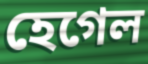
হেগেল